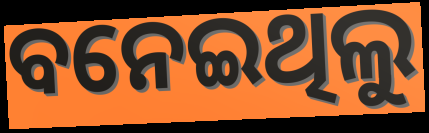
ବନେଇଥିଲୁ